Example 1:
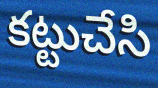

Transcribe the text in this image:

కట్టుచేసి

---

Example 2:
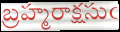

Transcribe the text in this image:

బ్రహ్మరాక్షసుఁ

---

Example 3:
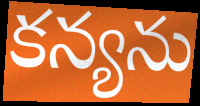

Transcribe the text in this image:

కన్యను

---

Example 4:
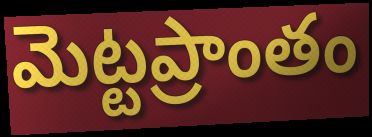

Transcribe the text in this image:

మెట్టప్రాంతం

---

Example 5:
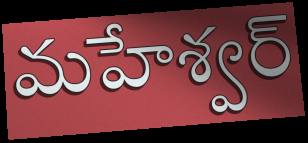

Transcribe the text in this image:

మహేశ్వర్